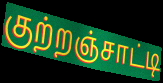
குற்றஞ்சாட்டி